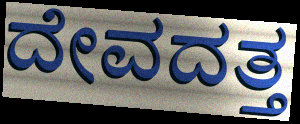
ದೇವದತ್ತ